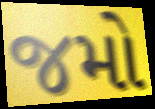
જમો